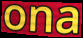
ona